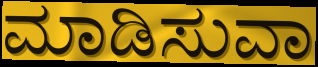
ಮಾಡಿಸುವಾ